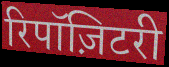
रिपॉज़िटरी